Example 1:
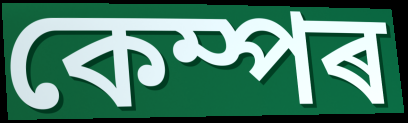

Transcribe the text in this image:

কেম্পৰ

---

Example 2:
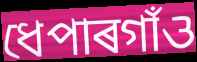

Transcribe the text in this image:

ধেপাৰগাঁও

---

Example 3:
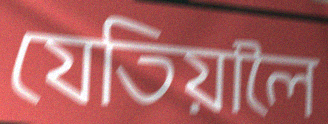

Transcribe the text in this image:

যেতিয়ালৈ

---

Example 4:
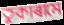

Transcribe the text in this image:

তুকাৰামে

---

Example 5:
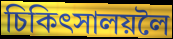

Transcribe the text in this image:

চিকিৎসালয়লৈ